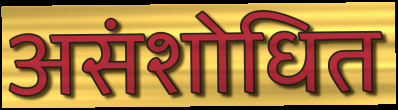
असंशोधित